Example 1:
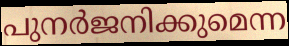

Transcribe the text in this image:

പുനർജനിക്കുമെന്ന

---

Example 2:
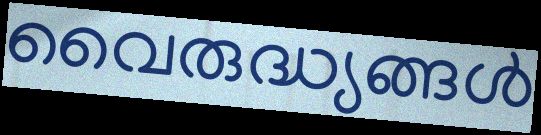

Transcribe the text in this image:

വൈരുദ്ധ്യങ്ങൾ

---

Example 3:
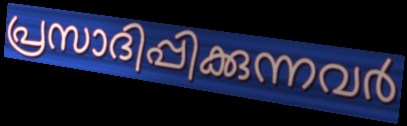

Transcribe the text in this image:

പ്രസാദിപ്പിക്കുന്നവർ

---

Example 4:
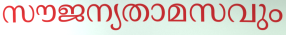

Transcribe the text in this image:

സൗജന്യതാമസവും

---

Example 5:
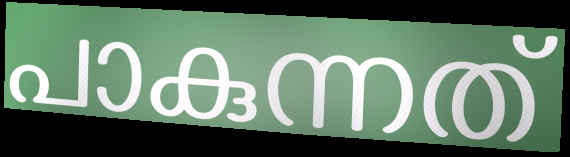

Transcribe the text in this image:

പാകുന്നത്